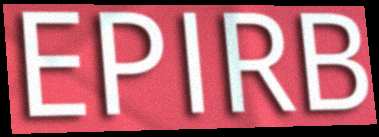
EPIRB